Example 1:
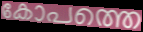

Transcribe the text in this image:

കോപത്തെ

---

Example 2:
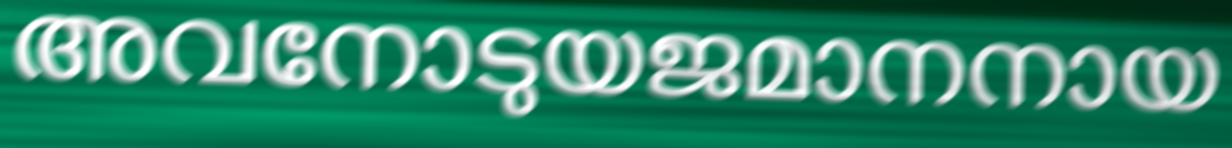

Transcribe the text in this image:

അവനോടുയജമാനനായ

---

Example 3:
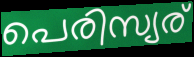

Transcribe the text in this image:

പെരിസ്യര്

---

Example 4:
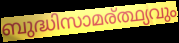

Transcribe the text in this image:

ബുദ്ധിസാമര്ത്ഥ്യവും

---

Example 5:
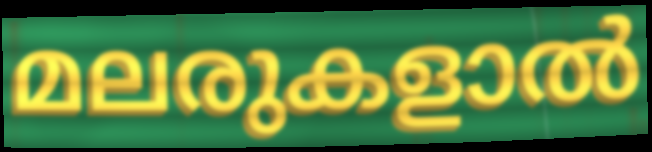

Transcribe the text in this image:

മലരുകളാൽ